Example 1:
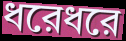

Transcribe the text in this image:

ধরেধরে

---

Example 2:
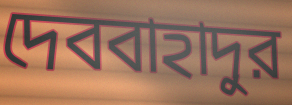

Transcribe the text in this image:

দেববাহাদুর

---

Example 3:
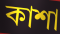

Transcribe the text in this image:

কাশা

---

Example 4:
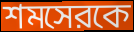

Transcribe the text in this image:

শমসেরকে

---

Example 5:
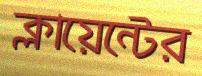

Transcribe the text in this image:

ক্লায়েন্টের